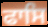
ਫਾਸਿ